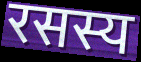
रसस्य